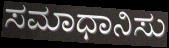
ಸಮಾಧಾನಿಸು